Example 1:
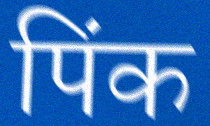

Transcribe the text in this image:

पिंक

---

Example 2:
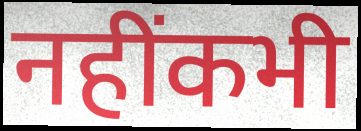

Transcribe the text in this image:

नहींकभी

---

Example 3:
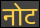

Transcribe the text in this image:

नोट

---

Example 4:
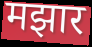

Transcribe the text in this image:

मझार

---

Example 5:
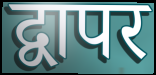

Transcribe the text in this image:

द्वापर